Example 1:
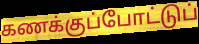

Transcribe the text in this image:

கணக்குப்போட்டுப்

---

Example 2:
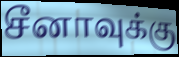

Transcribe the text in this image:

சீனாவுக்கு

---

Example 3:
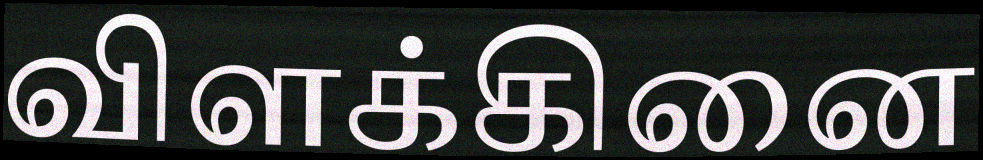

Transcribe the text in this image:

விளக்கினை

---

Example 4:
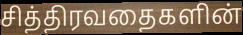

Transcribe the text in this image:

சித்திரவதைகளின்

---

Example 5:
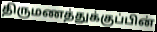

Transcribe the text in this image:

திருமணத்துக்குப்பின்